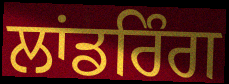
ਲਾਂਡਰਿੰਗ